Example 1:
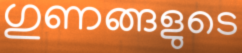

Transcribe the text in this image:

ഗുണങ്ങളുടെ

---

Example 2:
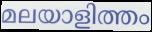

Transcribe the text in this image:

മലയാളിത്തം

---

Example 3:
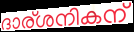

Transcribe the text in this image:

ദാര്ശനികന്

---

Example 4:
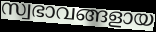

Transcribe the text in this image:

സ്വഭാവങ്ങളായ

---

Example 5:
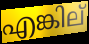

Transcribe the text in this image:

എങ്കില്